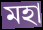
মহা